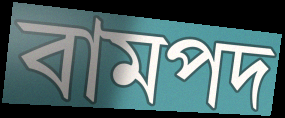
বামপদ